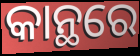
କାନ୍ଥରେ